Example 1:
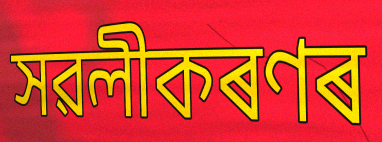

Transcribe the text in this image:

সৱলীকৰণৰ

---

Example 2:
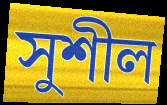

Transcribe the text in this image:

সুশীল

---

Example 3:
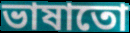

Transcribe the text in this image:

ভাষাতো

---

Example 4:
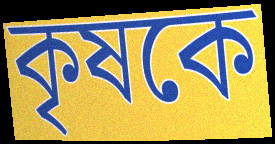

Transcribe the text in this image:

কৃষকে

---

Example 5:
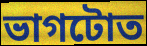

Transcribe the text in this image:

ভাগটোত